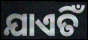
ଯାଏତିଁ